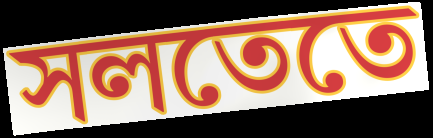
সলতেতে